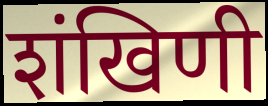
शंखिणी